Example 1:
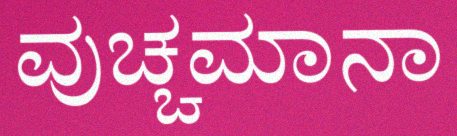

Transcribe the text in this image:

ವುಚ್ಚಮಾನಾ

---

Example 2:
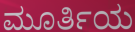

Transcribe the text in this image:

ಮೂರ್ತಿಯ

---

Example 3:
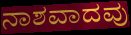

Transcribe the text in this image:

ನಾಶವಾದವು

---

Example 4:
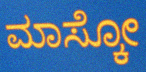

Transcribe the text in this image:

ಮಾಸ್ಕೋ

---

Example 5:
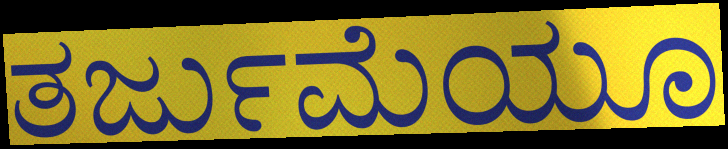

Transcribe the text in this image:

ತರ್ಜುಮೆಯೂ